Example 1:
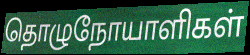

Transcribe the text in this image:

தொழுநோயாளிகள்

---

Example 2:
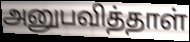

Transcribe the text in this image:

அனுபவித்தாள்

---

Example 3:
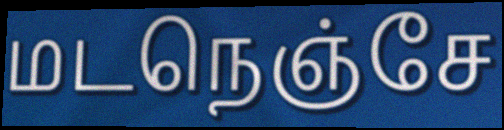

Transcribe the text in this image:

மடநெஞ்சே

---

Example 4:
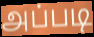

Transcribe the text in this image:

அப்படி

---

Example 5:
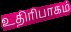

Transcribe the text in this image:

உதிரிபாகம்